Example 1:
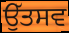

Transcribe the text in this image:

ਉੱਤਸਵ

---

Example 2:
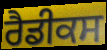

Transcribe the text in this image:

ਰੈਡੀਕਸ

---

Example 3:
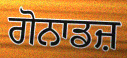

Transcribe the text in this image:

ਗੋਨਾਡਜ਼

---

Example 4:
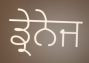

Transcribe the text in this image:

ਡ੍ਰੇਨੇਜ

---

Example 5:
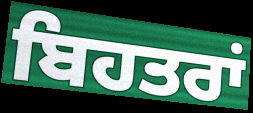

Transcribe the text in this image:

ਬਿਹਤਰਾਂ